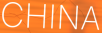
CHINA